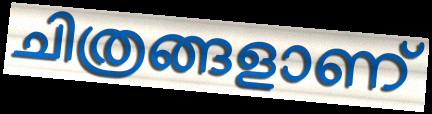
ചിത്രങ്ങളാണ്